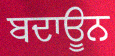
ਬਦਾਊਨ